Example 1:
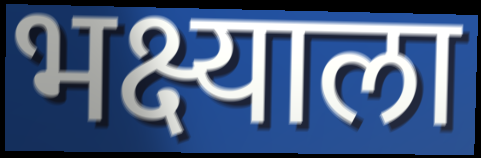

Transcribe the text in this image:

भक्ष्याला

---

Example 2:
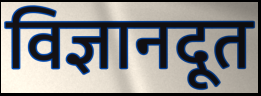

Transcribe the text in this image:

विज्ञानदूत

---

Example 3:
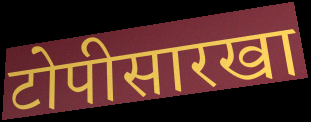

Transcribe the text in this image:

टोपीसारखा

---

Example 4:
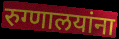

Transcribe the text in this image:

रुग्णालयांना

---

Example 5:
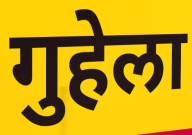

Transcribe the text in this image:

गुहेला